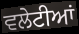
ਵਲੇਟੀਆਂ